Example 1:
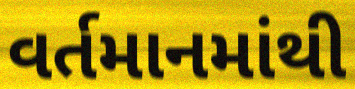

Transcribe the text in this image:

વર્તમાનમાંથી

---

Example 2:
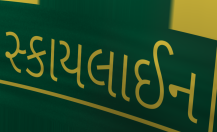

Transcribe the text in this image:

સ્કાયલાઈન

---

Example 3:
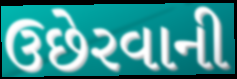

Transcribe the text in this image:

ઉછેરવાની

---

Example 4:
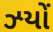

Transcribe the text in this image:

ઝ્યોં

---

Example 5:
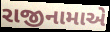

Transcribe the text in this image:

રાજીનામાએ